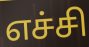
எச்சி